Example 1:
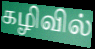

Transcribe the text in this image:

கழிவில்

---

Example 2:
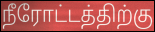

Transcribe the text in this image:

நீரோட்டத்திற்கு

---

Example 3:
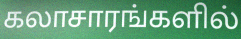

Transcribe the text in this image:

கலாசாரங்களில்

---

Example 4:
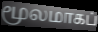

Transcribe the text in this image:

மூலமாகப்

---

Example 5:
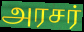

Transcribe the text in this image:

அரசர்